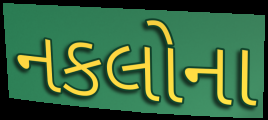
નકલોના